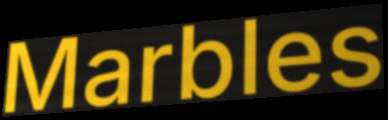
Marbles